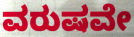
ವರುಷವೇ